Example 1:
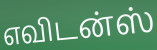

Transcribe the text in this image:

எவிடன்ஸ்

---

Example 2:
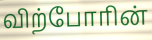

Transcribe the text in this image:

விற்போரின்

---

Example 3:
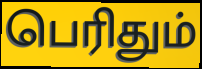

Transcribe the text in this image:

பெரிதும்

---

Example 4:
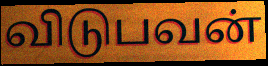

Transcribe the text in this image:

விடுபவன்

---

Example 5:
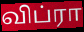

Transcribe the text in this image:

விப்ரா